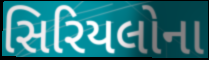
સિરિયલોના